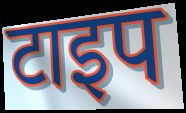
टाइप